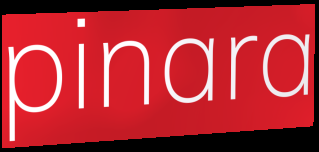
pinara